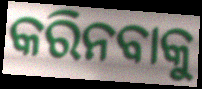
କରିନବାକୁ